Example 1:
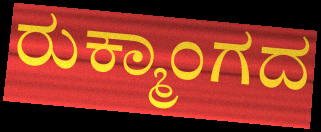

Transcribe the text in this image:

ರುಕ್ಮಾಂಗದ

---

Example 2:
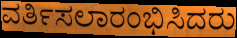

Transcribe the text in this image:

ವರ್ತಿಸಲಾರಂಭಿಸಿದರು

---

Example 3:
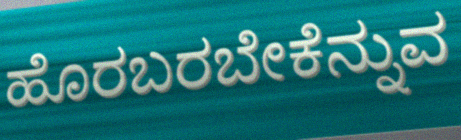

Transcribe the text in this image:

ಹೊರಬರಬೇಕೆನ್ನುವ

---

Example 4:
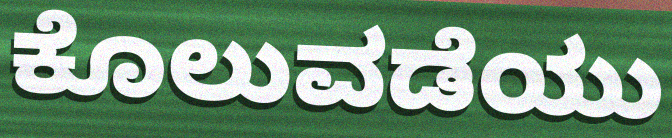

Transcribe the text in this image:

ಕೊಲುವಡೆಯು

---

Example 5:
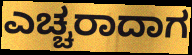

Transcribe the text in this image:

ಎಚ್ಚರಾದಾಗ